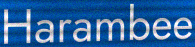
Harambee